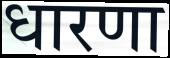
धारणा